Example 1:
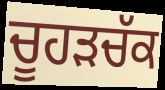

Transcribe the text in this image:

ਚੂਹਡ਼ਚੱਕ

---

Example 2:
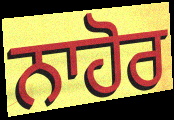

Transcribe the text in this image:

ਨਾਹੋਰ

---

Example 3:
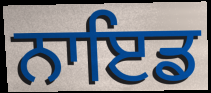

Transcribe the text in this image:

ਨਾਇਡ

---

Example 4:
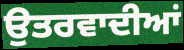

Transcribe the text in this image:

ਉਤਰਵਾਦੀਆਂ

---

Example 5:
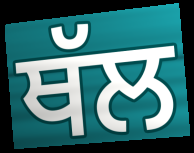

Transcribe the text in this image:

ਥੱਲ